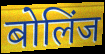
बोलिंज